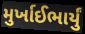
મુર્ખાઈભાર્યું